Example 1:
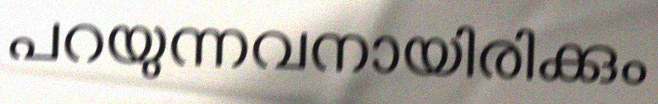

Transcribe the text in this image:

പറയുന്നവനായിരിക്കും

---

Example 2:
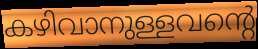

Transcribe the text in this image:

കഴിവാനുള്ളവന്റെ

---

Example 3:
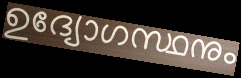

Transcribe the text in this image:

ഉദ്യോഗസ്ഥനും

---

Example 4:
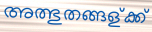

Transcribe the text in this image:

അത്ഭുതങ്ങള്ക്ക്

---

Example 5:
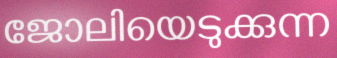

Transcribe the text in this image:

ജോലിയെടുക്കുന്ന